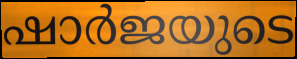
ഷാർജയുടെ